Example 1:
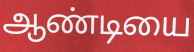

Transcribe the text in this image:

ஆண்டியை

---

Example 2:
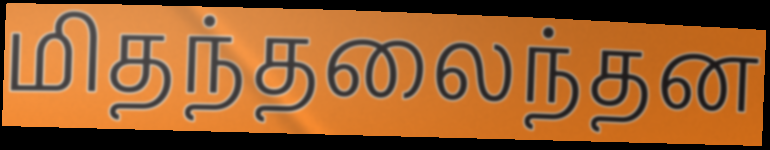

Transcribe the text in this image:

மிதந்தலைந்தன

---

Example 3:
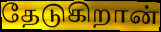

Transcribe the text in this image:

தேடுகிறான்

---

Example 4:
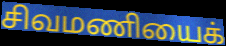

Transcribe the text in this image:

சிவமணியைக்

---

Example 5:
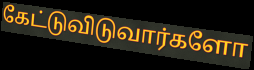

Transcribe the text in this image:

கேட்டுவிடுவார்களோ